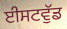
ਈਸਟਵੁੱਡ